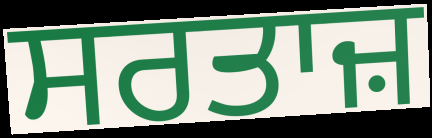
ਸਰਤਾਜ਼